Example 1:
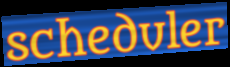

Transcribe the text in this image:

scheduler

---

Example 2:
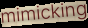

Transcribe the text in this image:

mimicking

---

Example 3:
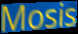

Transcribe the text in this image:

Mosis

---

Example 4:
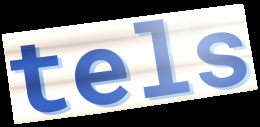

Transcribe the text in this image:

tels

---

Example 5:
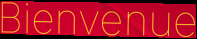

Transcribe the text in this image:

Bienvenue